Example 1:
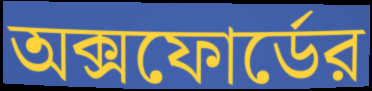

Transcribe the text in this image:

অক্সফোর্ডের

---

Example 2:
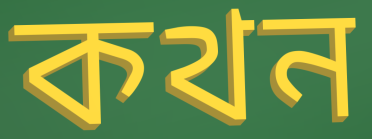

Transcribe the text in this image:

কথন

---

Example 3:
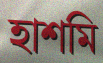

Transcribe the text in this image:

হাশমি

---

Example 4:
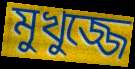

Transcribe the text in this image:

মুখুজ্জে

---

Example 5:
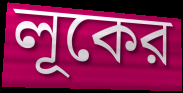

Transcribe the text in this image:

লূকের